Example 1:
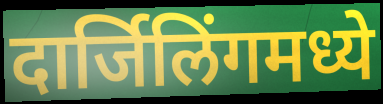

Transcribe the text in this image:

दार्जिलिंगमध्ये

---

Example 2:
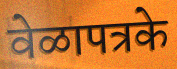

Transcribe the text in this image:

वेळापत्रके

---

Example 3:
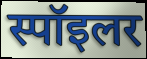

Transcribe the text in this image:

स्पॉइलर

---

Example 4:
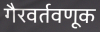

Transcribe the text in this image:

गैरवर्तवणूक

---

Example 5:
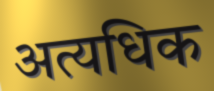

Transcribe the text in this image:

अत्यधिक